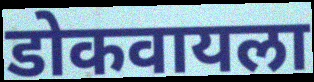
डोकवायला